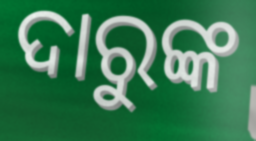
ଦାରୁଙ୍କ